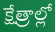
క్షేత్రాల్లో